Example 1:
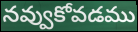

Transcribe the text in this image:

నవ్వుకోవడము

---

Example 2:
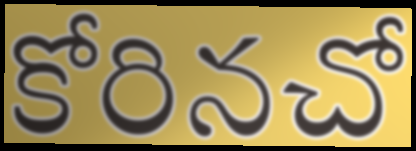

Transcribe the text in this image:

కోరినచో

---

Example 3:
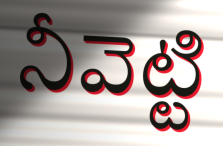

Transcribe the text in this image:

నీవెట్టి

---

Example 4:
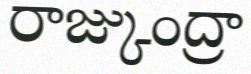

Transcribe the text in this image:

రాజ్కుంద్రా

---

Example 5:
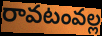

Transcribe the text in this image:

రావటంవల్ల